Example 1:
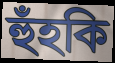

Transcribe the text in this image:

হুঁহকি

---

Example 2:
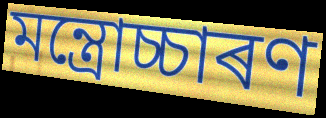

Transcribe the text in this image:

মন্ত্ৰোচ্চাৰণ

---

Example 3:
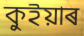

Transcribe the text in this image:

কুইয়াৰ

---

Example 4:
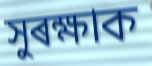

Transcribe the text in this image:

সুৰক্ষাক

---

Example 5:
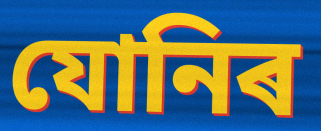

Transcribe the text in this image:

যোনিৰ